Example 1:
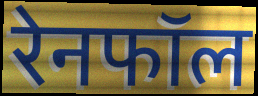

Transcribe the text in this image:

रेनफॉल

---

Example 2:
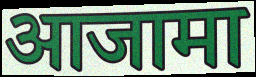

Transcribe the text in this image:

आजामा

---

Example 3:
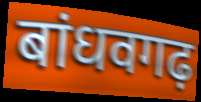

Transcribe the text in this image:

बांधवगढ़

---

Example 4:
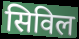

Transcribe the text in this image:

सिविल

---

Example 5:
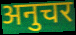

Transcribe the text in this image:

अनुचर